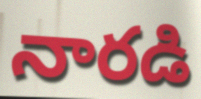
నారడి